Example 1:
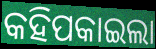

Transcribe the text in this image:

କହିପକାଇଲା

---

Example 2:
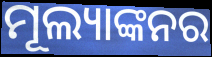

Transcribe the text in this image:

ମୂଲ୍ୟାଙ୍କନର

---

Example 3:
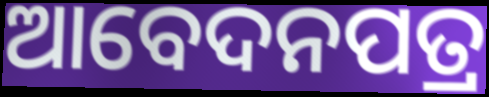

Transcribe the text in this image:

ଆବେଦନପତ୍ର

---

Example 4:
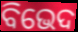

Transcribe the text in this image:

ବିଭେଦ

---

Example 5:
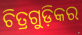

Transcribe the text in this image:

ଚିତ୍ରଗୁଡ଼ିକର